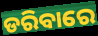
ଡରିବାରେ